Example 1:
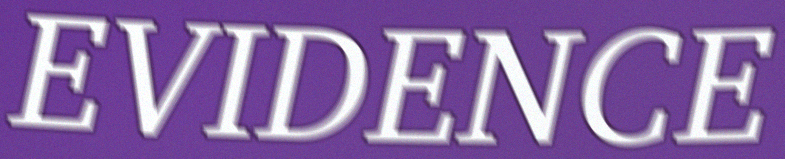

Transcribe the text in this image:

EVIDENCE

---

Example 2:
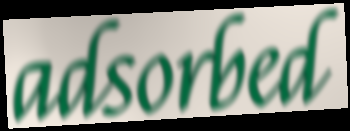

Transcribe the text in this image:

adsorbed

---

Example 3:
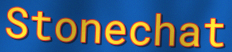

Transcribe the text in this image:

Stonechat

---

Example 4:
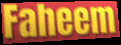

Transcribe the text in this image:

Faheem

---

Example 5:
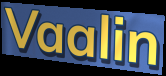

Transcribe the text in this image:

Vaalin